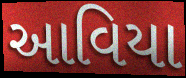
આવિયા